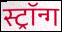
स्ट्रॉन्ग